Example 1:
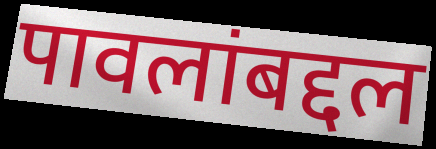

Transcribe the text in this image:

पावलांबद्दल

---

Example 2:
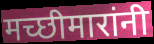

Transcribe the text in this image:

मच्छीमारांनी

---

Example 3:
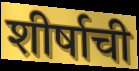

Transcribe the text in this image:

शीर्षाची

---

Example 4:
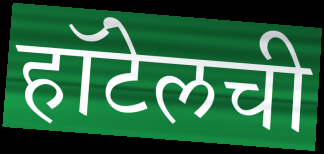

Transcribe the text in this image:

हॉटेलची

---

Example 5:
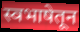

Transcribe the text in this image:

स्वभाषेतून